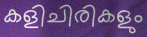
കളിചിരികളും